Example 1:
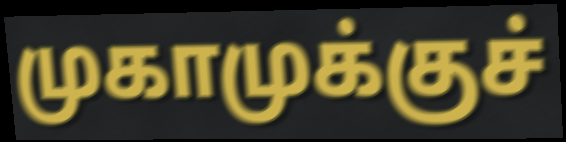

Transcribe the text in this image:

முகாமுக்குச்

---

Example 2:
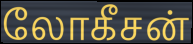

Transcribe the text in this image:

லோகீசன்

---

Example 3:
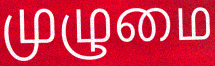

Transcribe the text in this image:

முழுமை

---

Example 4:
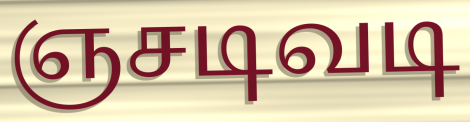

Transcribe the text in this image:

ஞசடிவடி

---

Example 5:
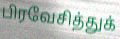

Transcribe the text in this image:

பிரவேசித்துக்